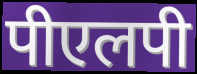
पीएलपी